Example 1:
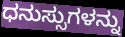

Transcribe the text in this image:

ಧನುಸ್ಸುಗಳನ್ನು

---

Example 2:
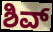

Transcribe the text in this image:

ಶಿವ್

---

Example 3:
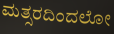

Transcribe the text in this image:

ಮತ್ಸರದಿಂದಲೋ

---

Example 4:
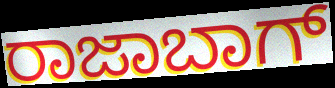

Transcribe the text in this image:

ರಾಜಾಬಾಗ್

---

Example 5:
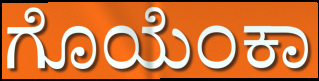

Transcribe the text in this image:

ಗೊಯೆಂಕಾ